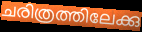
ചരിത്രത്തിലേക്കു